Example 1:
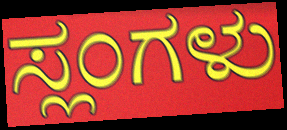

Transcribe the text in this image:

ಸ್ಲಂಗಳು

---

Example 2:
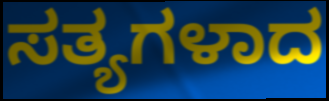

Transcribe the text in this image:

ಸತ್ಯಗಳಾದ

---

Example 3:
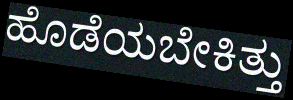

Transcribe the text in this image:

ಹೊಡೆಯಬೇಕಿತ್ತು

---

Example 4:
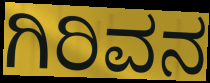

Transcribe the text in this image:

ಗಿರಿವನ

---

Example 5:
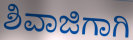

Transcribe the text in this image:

ಶಿವಾಜಿಗಾಗಿ